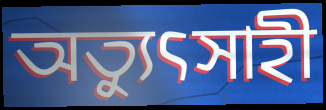
অত্যুৎসাহী